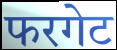
फरगेट